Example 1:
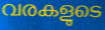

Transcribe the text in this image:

വരകളുടെ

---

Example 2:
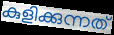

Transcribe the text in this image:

കുളിക്കുന്നത്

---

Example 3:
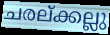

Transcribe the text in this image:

ചരല്ക്കല്ലു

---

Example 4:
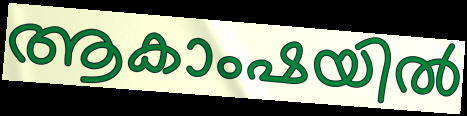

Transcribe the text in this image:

ആകാംഷയിൽ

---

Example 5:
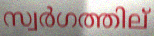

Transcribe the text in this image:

സ്വർഗത്തില്